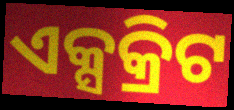
ଏକ୍ସକ୍ରିଟ